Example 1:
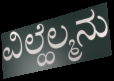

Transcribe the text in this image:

ವಿಲ್ಹೆಲ್ಮನು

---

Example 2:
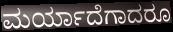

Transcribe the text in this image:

ಮರ್ಯಾದೆಗಾದರೂ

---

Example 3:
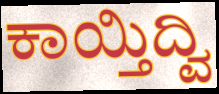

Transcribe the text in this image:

ಕಾಯ್ತಿದ್ವಿ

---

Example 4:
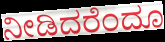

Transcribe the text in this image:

ನೀಡಿದರೆಂದೂ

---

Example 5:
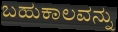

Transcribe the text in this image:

ಬಹುಕಾಲವನ್ನು